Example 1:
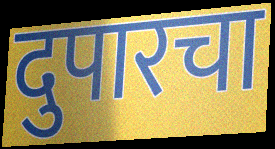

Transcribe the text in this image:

दुपारचा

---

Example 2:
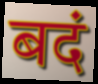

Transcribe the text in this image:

बदं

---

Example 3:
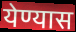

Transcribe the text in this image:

येण्यास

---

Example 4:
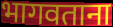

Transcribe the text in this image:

भागवताना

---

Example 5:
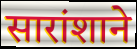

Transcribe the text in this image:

सारांशाने